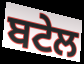
ਬਟੇਲ